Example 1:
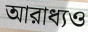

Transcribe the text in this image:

আরাধ্যও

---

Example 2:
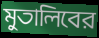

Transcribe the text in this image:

মুতালিবের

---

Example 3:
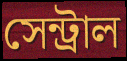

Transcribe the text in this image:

সেন্ট্রাল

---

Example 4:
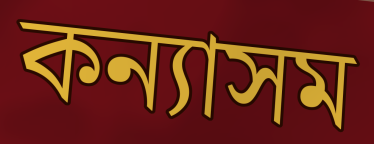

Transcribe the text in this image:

কন্যাসম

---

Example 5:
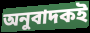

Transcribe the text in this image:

অনুবাদকই